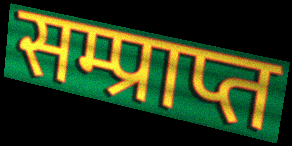
सम्प्राप्त